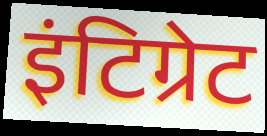
इंटिग्रेट